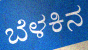
ಬೆಳಕಿನ